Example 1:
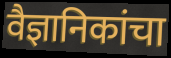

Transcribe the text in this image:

वैज्ञानिकांचा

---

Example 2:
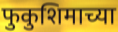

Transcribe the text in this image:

फुकुशिमाच्या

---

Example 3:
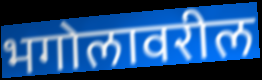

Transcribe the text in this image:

भगोलावरील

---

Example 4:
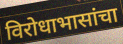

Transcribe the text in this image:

विरोधाभासांचा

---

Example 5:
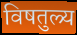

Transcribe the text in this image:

विषतुल्य